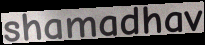
shamadhav